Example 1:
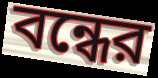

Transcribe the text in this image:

বন্ধের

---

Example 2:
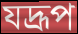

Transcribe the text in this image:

যদ্রূপ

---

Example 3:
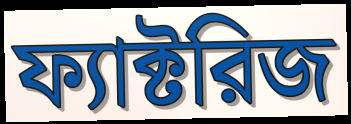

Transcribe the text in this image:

ফ্যাক্টরিজ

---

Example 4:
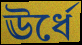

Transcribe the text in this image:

ঊর্ধে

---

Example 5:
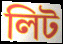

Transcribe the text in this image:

লিট